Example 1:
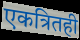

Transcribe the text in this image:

एकत्रितही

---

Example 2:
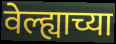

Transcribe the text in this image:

वेल्ह्याच्या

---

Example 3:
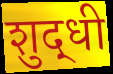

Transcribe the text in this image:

शुद्धी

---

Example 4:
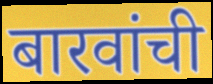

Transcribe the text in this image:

बारवांची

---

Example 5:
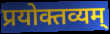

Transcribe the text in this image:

प्रयोक्तव्यम्